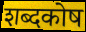
शब्दकोष